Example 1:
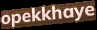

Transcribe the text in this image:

opekkhaye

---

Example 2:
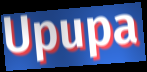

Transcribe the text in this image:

Upupa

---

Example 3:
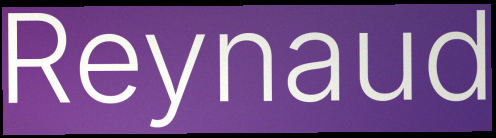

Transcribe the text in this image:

Reynaud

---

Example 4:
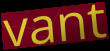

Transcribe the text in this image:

vant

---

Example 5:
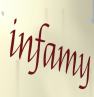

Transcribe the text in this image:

infamy